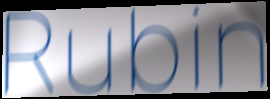
Rubin